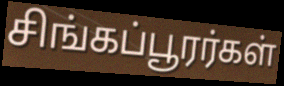
சிங்கப்பூரர்கள்